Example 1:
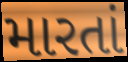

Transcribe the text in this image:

મારતાં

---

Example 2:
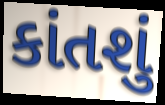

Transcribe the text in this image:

કાંતશું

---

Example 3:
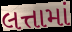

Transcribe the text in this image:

લત્તામાં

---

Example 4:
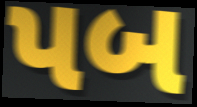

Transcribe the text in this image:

પબ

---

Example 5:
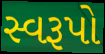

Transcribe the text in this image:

સ્વરૂપો